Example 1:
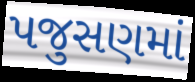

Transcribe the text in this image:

પજુસણમાં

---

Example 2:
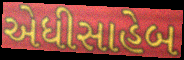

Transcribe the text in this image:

એધીસાહેબ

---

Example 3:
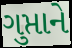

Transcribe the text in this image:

ગુપ્તાને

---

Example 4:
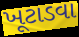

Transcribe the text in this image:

ખૂટાડવા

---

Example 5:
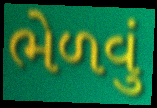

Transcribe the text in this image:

ભેળવું